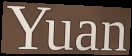
Yuan